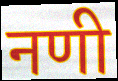
नणी